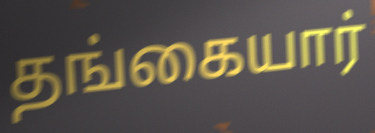
தங்கையார்